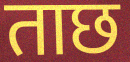
ताछ